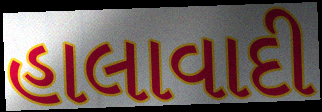
હાલાવાદી